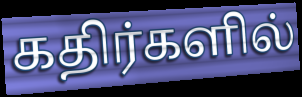
கதிர்களில்